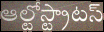
ఆల్టోస్ట్రాటస్